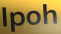
Ipoh